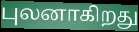
புலனாகிறது